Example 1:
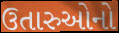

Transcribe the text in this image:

ઉતારુઓનો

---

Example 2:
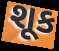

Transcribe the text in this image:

શૂક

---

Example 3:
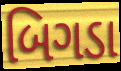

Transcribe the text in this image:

બિગડા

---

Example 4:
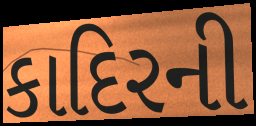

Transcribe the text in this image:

કાદિરની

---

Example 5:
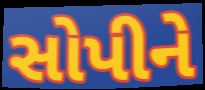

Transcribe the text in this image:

સોપીને